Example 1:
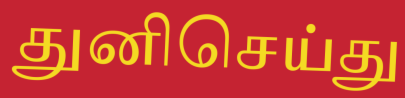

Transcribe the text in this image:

துனிசெய்து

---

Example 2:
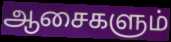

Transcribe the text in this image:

ஆசைகளும்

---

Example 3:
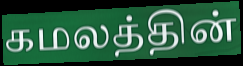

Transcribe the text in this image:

கமலத்தின்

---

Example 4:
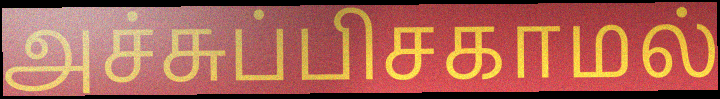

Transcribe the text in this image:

அச்சுப்பிசகாமல்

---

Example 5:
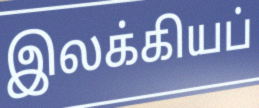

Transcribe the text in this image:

இலக்கியப்